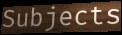
Subjects